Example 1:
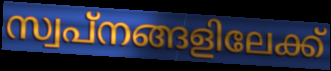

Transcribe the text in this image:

സ്വപ്നങ്ങളിലേക്ക്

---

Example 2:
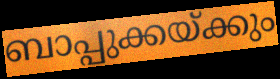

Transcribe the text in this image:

ബാപ്പുക്കയ്ക്കും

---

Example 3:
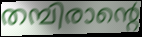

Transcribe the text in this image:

തമ്പിരാന്റെ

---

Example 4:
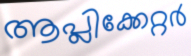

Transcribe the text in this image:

ആപ്ലിക്കേറ്റർ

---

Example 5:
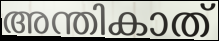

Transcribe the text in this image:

അന്തികാത്